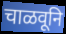
चाळवूनि